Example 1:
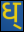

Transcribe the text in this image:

ध्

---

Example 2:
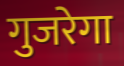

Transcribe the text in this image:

गुजरेगा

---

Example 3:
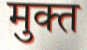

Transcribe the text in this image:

मुक्त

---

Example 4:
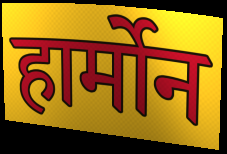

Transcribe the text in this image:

हार्मोन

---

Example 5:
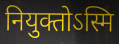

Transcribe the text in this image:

नियुक्तोऽस्मि